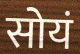
सोयं